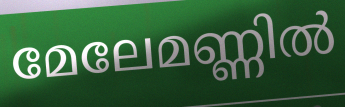
മേലേമണ്ണിൽ